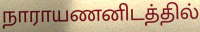
நாராயணனிடத்தில்